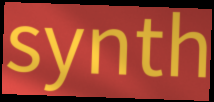
synth